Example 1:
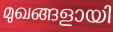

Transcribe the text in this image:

മുഖങ്ങളായി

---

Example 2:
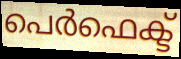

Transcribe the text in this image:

പെർഫെക്ട്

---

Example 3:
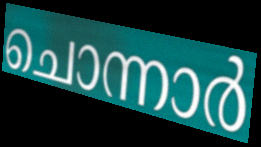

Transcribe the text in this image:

ചൊന്നാർ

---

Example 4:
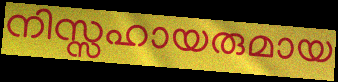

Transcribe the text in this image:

നിസ്സഹായരുമായ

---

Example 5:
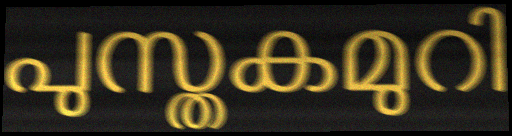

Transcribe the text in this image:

പുസ്തകമുറി